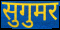
सुगुमर